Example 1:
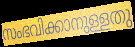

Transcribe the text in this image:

സംഭവിക്കാനുള്ളതു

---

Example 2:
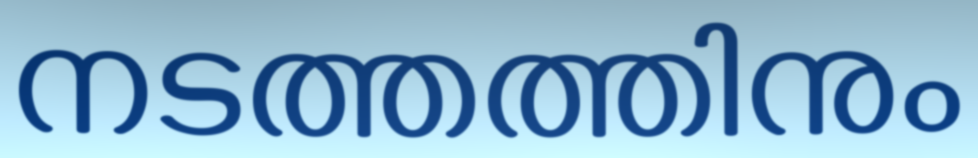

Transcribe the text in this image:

നടത്തത്തിനും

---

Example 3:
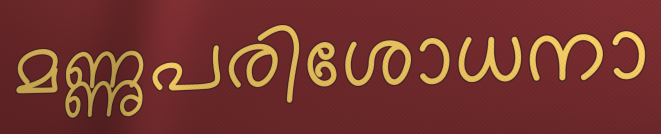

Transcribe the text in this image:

മണ്ണുപരിശോധനാ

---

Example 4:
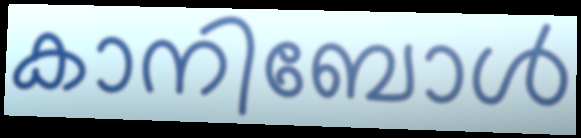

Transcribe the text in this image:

കാനിബോൾ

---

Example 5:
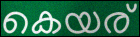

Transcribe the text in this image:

കെയര്